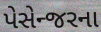
પેસેન્જરના